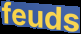
feuds